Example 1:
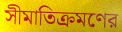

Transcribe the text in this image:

সীমাতিক্রমণের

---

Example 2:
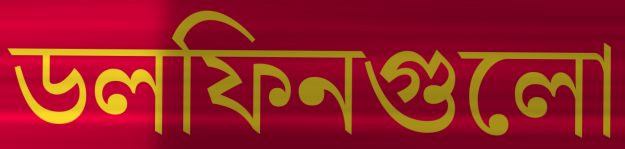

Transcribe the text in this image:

ডলফিনগুলো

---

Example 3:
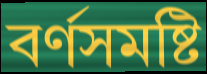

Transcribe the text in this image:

বর্ণসমষ্টি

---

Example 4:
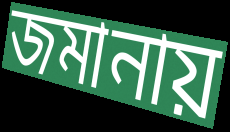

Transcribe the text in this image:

জমানায়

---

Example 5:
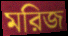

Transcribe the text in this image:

মরিজ